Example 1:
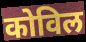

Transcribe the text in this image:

कोविल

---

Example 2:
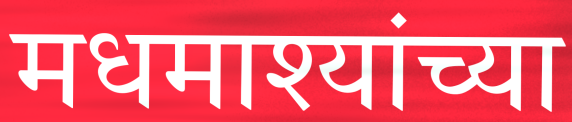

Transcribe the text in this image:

मधमाश्‍यांच्या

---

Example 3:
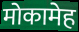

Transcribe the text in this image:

मोकामेह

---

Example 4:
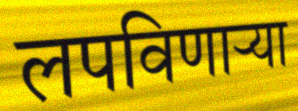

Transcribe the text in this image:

लपविणाऱ्या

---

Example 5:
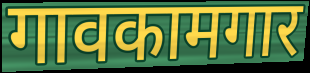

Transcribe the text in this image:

गावकामगार